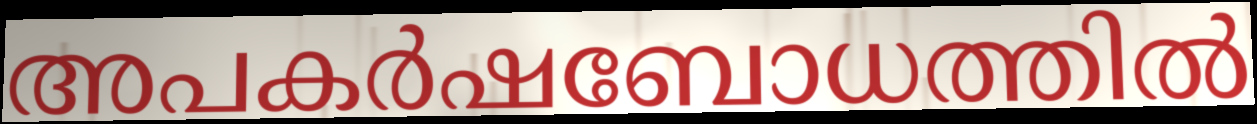
അപകർഷബോധത്തിൽ